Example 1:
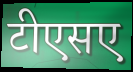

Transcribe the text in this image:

टीएसए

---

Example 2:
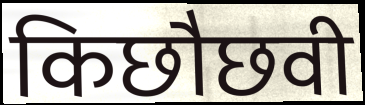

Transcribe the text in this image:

किछौछवी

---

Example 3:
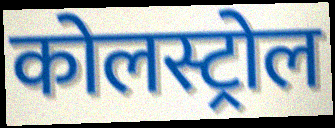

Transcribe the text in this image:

कोलस्ट्रोल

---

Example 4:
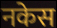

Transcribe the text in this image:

नकेस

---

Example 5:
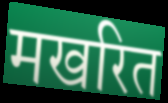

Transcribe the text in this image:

मखरित